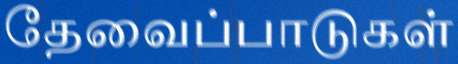
தேவைப்பாடுகள்